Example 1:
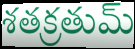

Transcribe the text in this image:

శతక్రతుమ్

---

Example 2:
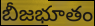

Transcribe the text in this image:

బీజభూతం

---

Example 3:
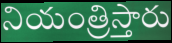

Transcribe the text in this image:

నియంత్రిస్తారు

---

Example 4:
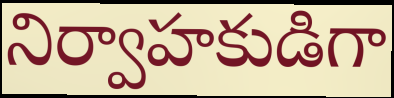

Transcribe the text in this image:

నిర్వాహకుడిగా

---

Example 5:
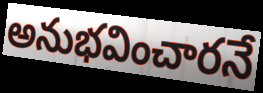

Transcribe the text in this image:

అనుభవించారనే